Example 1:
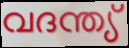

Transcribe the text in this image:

വദന്ത്യ്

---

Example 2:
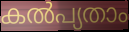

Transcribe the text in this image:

കൽപ്യതാം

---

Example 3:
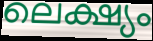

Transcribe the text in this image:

ലെക്ഷ്യം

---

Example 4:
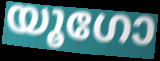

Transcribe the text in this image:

യൂഗോ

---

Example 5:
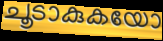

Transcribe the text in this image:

ചൂടാകുകയോ